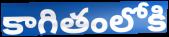
కాగితంలోకి